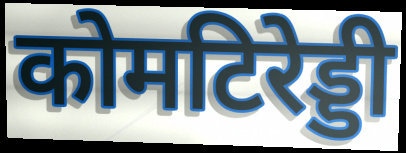
कोमटिरेड्डी